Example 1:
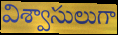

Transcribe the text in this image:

విశ్వాసులుగా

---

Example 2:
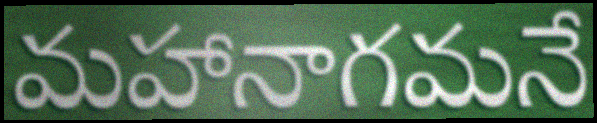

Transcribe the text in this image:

మహానాగమనే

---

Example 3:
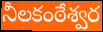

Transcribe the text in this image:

నీలకంఠేశ్వర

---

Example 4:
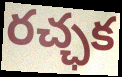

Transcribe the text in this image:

రచ్ఛక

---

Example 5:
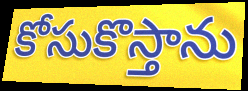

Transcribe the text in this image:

కోసుకొస్తాను